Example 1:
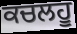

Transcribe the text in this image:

ਕਚਲਹੂ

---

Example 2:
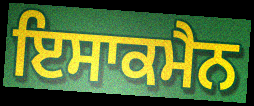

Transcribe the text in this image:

ਇਸਾਕਮੈਨ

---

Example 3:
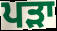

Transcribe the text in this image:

ਪੜਾ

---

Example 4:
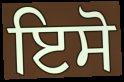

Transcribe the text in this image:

ਇਸੋ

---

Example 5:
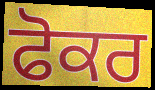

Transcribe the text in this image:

ਫੋਕਰ